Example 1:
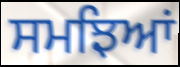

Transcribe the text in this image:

ਸਮਝਿਆਂ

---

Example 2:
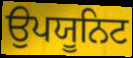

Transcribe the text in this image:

ਉਪਯੂਨਿਟ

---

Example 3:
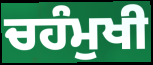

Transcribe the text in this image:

ਚਹੰਮੁਖੀ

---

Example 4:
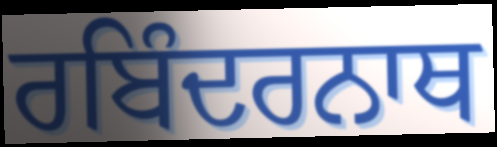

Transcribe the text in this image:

ਰਬਿੰਦਰਨਾਥ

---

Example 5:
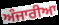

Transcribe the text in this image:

ਅੰਜਾਰੀਆ